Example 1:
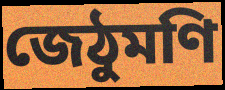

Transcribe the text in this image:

জেঠুমণি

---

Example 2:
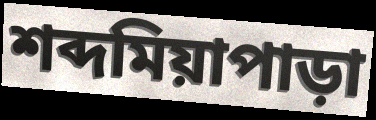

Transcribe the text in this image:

শব্দমিয়াপাড়া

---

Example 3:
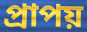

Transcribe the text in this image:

প্রাপয়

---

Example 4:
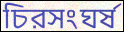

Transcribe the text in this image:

চিরসংঘর্ষ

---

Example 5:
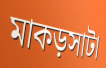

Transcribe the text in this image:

মাকড়সাটা